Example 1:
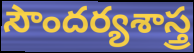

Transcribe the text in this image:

సౌందర్యశాస్త్ర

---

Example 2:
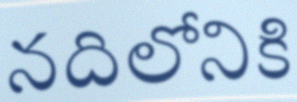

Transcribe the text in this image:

నదిలోనికి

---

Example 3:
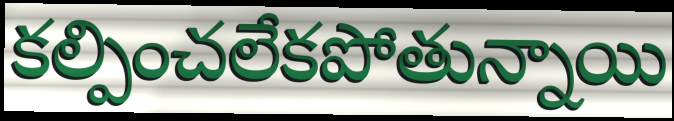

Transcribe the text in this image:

కల్పించలేకపోతున్నాయి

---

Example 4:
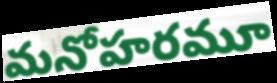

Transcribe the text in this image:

మనోహరమూ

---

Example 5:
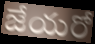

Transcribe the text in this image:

జేయరో